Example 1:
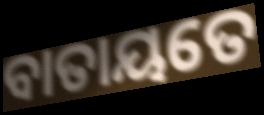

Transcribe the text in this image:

ବାତାୟତେ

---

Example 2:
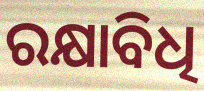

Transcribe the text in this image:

ରକ୍ଷାବିଧି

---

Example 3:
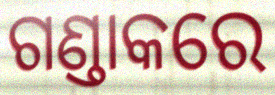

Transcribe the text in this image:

ଗଣ୍ଡାକରେ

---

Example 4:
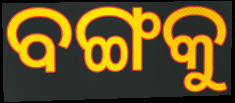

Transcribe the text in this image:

ବଙ୍ଗକୁ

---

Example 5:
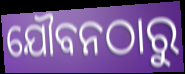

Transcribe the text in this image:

ଯୌବନଠାରୁ